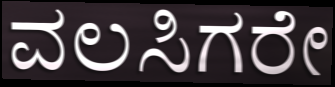
ವಲಸಿಗರೇ